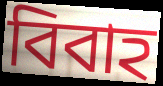
বিবাহ